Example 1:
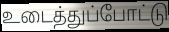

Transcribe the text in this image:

உடைத்துப்போட்டு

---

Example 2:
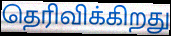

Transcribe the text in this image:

தெரிவிக்கிறது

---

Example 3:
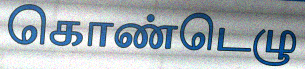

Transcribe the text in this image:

கொண்டெழு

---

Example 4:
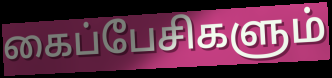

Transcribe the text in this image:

கைப்பேசிகளும்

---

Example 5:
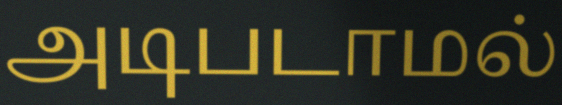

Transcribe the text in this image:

அடிபடாமல்